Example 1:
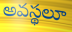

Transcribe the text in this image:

అవస్థలూ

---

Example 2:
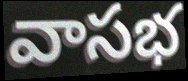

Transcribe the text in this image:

వాసభ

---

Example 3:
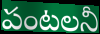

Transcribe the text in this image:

పంటలనీ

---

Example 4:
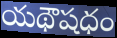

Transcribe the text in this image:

యథౌషధం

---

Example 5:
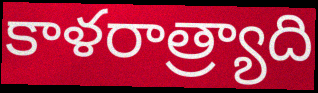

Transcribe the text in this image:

కాళరాత్ర్యాది